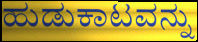
ಹುಡುಕಾಟವನ್ನು